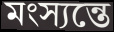
মংস্যন্তে